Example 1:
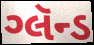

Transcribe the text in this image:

ગ્લૅન્ડ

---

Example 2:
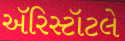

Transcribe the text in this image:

ઍરિસ્ટૉટલે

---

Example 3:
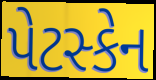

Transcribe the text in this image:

પેટસ્કેન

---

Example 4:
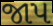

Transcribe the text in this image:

જાપ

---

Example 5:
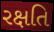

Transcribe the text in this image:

રક્ષતિ